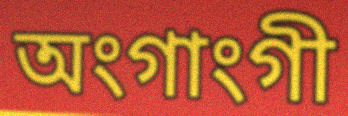
অংগাংগী